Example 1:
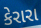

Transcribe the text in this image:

કેરારા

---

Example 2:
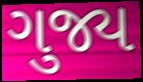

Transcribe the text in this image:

ગુજ્ય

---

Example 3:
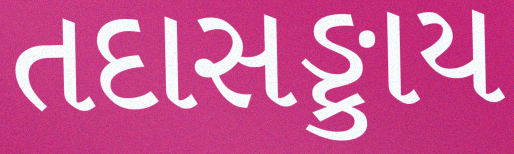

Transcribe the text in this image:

તદાસઙ્કાય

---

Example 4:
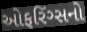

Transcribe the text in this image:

ઓફરિંગ્સનો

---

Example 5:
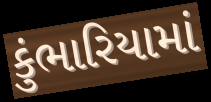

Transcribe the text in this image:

કુંભારિયામાં